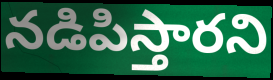
నడిపిస్తారని